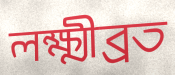
লক্ষ্মীব্রত